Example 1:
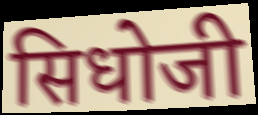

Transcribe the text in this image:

सिधोजी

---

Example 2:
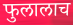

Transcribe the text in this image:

फुलालाच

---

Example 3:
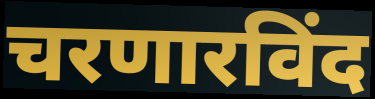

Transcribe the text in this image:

चरणारविंद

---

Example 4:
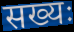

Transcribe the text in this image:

सख्यः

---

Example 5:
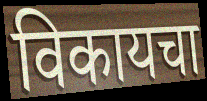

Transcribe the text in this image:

विकायचा